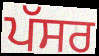
ਪੱਸਰ